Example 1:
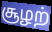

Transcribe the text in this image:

சூழற்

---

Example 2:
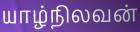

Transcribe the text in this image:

யாழ்நிலவன்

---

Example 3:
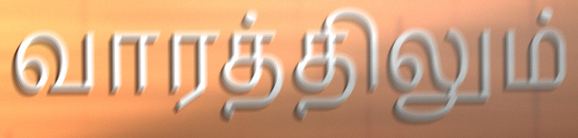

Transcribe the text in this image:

வாரத்திலும்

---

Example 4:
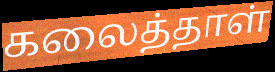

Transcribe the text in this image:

கலைத்தாள்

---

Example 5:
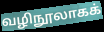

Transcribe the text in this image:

வழிநூலாகக்